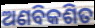
ଅଣବିକଶିତ